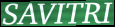
SAVITRI